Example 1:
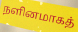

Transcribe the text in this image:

நளினமாகத்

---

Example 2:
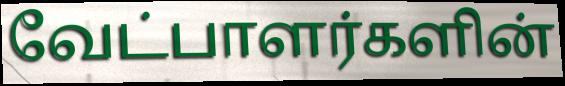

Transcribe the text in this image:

வேட்பாளர்களின்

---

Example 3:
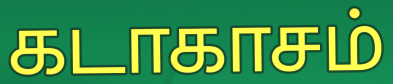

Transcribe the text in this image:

கடாகாசம்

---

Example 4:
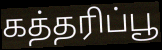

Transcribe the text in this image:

கத்தரிப்பூ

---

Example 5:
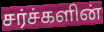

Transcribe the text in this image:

சர்ச்களின்